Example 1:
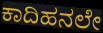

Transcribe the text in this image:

ಕಾದಿಹನಲೇ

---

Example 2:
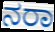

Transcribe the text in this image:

ನರಾ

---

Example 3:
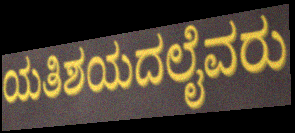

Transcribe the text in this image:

ಯತಿಶಯದಲೈವರು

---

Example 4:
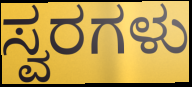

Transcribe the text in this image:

ಸ್ವರಗಳು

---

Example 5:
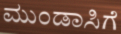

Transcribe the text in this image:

ಮುಂಡಾಸಿಗೆ